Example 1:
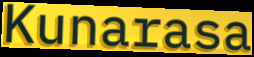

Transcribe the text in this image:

Kunarasa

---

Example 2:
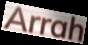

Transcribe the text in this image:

Arrah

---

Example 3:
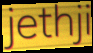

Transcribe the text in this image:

jethji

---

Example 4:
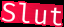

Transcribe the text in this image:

Slut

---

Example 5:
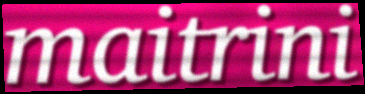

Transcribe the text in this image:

maitrini